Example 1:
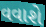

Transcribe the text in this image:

વવાશે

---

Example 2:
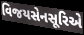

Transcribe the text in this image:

વિજયસેનસૂરિએ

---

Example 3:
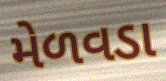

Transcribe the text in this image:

મેળવડા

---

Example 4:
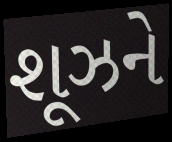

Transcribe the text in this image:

શૂઝને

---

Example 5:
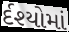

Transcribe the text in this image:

ર્દશ્યોમાં